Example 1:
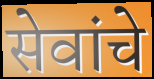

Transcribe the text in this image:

सेवांचे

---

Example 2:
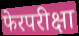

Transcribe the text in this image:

फेरपरीक्षा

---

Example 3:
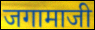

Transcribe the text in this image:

जगामाजी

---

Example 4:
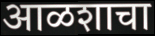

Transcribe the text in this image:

आळशाचा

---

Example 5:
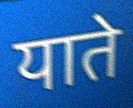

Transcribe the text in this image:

याते